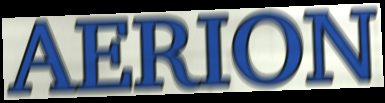
AERION